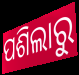
ପଶିଲାରୁ